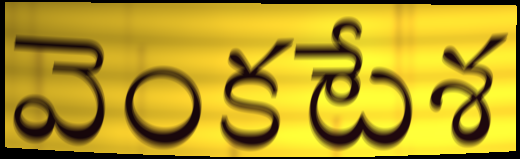
వెంకటేశ